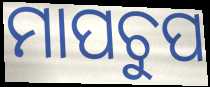
ମାପଚୁପ